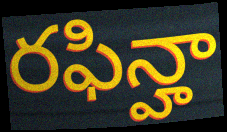
రఫిన్హా